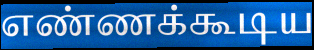
எண்ணக்கூடிய